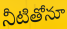
నీటితోనూ